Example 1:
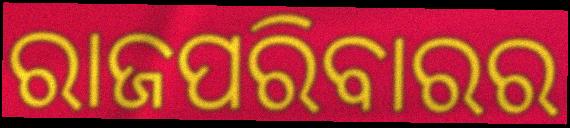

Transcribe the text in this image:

ରାଜପରିବାରର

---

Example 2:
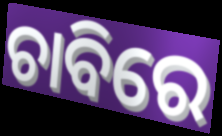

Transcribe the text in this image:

ଚାବିରେ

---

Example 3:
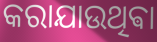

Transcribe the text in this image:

କରାଯାଉଥିଵା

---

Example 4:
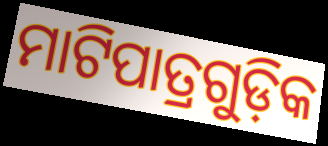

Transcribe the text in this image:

ମାଟିପାତ୍ରଗୁଡ଼ିକ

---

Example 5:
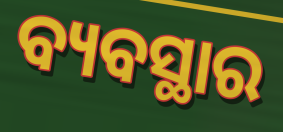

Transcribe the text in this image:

ବ୍ୟବସ୍ଥାର